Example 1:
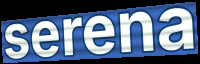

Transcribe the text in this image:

serena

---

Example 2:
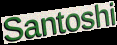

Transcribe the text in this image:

Santoshi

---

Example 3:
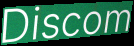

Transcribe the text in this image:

Discom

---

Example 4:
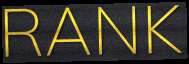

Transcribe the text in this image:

RANK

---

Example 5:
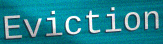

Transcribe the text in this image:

Eviction